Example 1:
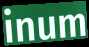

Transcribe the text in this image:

inum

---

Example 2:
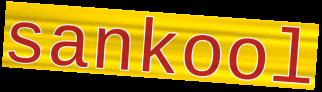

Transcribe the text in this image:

sankool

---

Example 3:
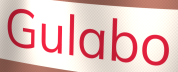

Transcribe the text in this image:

Gulabo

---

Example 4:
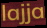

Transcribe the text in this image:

lajja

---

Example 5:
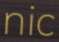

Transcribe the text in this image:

nic